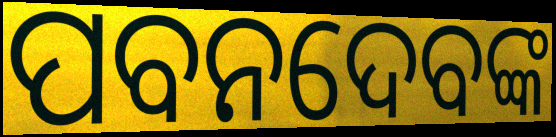
ପବନଦେବଙ୍କ